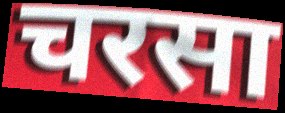
चरसा